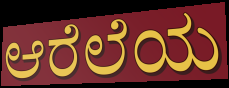
ಆರೆಲೆಯ